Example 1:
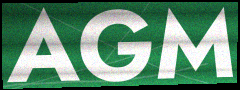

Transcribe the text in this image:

AGM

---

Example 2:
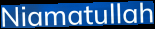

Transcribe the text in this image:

Niamatullah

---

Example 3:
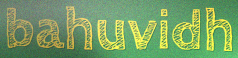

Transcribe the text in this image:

bahuvidh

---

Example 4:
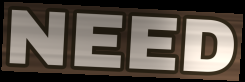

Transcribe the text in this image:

NEED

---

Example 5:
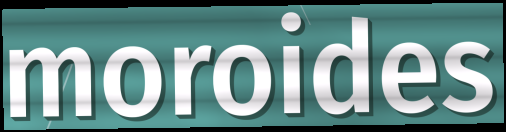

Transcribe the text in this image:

moroides